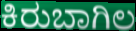
ಕಿರುಬಾಗಿಲ